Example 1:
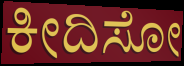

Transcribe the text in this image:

ಕೀದಿಸೋ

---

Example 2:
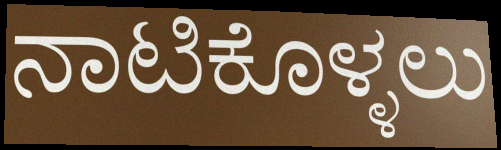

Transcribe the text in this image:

ನಾಟಿಕೊಳ್ಳಲು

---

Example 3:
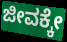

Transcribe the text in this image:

ಜೀವಕ್ಕೇ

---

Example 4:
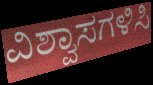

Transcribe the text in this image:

ವಿಶ್ವಾಸಗಳಿಸಿ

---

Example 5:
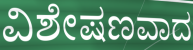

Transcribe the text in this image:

ವಿಶೇಷಣವಾದ